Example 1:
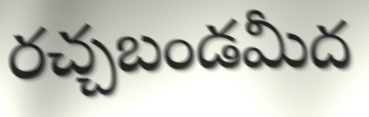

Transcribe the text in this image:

రచ్చబండమీద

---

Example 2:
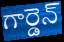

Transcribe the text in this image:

గార్డెన్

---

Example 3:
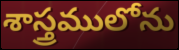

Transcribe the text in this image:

శాస్త్రములోను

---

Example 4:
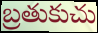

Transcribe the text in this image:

బ్రతుకుచు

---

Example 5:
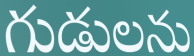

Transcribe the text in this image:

గుడులను